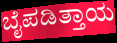
ಬೈಪಡಿತ್ತಾಯ